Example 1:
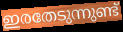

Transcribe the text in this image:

ഇരതേടുന്നുണ്ട്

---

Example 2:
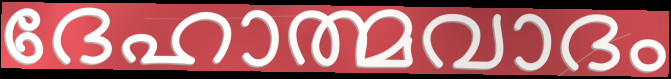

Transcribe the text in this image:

ദേഹാത്മവാദം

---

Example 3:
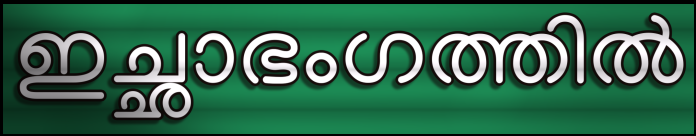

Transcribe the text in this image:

ഇച്ഛാഭംഗത്തിൽ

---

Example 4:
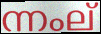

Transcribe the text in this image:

ന്നംല്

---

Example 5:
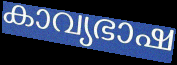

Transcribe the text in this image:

കാവ്യഭാഷ